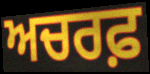
ਅਚਰਫ਼